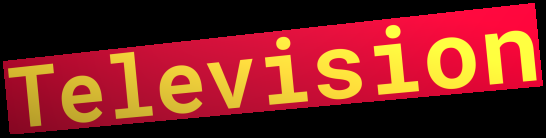
Television